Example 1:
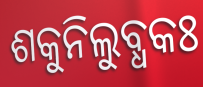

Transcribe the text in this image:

ଶକୁନିଲୁବ୍ଧକଃ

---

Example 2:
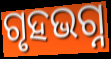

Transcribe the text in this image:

ଗୃହଭଗ୍ନ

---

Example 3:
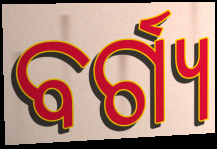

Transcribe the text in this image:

ବର୍ଗ୍ୟ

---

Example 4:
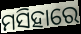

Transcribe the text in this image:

ମସିହାରେ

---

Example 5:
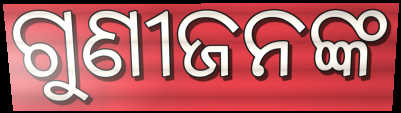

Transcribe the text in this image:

ଗୁଣୀଜନଙ୍କ